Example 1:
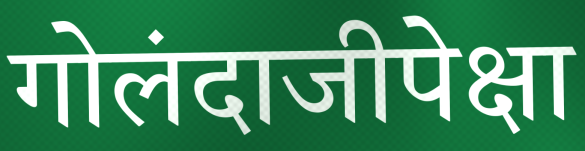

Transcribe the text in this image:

गोलंदाजीपेक्षा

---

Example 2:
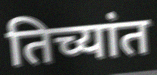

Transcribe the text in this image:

तिच्यांत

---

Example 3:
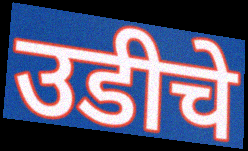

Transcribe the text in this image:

उडीचे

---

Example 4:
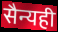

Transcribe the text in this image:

सैन्यही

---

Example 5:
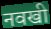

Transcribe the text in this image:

नवखी